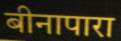
बीनापारा